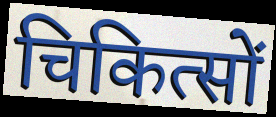
चिकित्सों